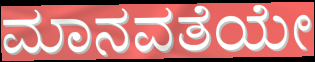
ಮಾನವತೆಯೇ